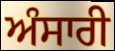
ਅੰਸਾਰੀ